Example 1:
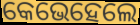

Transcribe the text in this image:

କେଭେହେଲେ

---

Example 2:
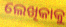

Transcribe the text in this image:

ଲେଖିକାକୁ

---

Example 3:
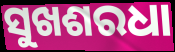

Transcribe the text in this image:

ସୁଖଶରଧା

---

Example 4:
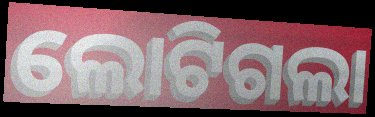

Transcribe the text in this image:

ଲୋଟିଗଲା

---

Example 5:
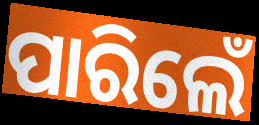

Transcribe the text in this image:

ପାରିଲେଁ